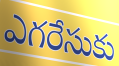
ఎగరేసుకు